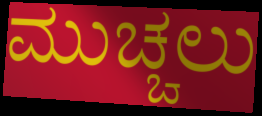
ಮುಚ್ಚಲು